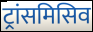
ट्रांसमिसिव